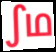
ഽഥ